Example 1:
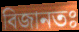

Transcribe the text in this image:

বিজানতঃ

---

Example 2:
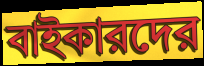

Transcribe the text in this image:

বাইকারদের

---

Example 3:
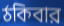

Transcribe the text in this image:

ঠকিবার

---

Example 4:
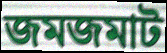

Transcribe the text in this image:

জমজমাট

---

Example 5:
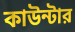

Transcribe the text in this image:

কাউন্টার